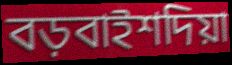
বড়বাইশদিয়া